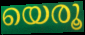
യെരൂ